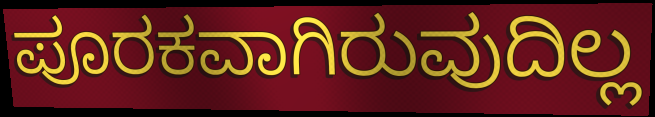
ಪೂರಕವಾಗಿರುವುದಿಲ್ಲ